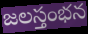
జలస్తంభన